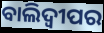
ବାଲିଦ୍ୱୀପର